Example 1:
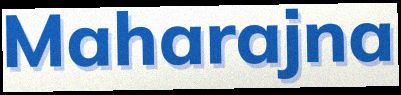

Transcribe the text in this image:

Maharajna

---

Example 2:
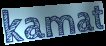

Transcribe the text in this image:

kamat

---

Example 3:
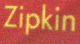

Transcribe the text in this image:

Zipkin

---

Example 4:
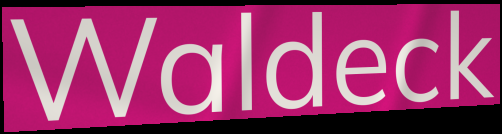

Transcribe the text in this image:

Waldeck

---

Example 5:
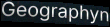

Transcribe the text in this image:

Geographyn